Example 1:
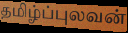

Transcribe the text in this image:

தமிழ்ப்புலவன்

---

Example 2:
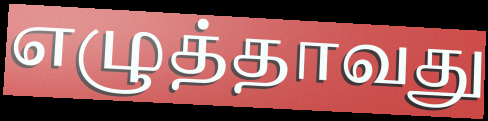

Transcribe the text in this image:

எழுத்தாவது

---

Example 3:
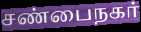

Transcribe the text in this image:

சண்பைநகர்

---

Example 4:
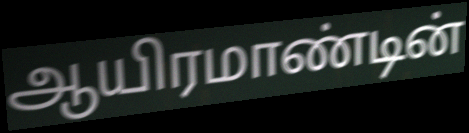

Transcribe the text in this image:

ஆயிரமாண்டின்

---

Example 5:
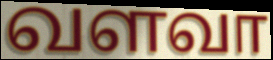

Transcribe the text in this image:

வளவா